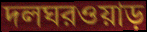
দলঘরওয়াড়